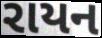
રાયન